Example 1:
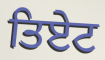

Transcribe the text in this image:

ਤਿਏਟ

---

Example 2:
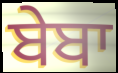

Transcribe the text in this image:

ਬੇਬਾ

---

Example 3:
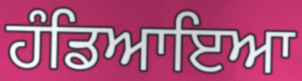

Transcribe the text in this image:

ਹੰਡਿਆਇਆ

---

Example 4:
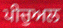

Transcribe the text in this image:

ਪੀਚੁਅਲ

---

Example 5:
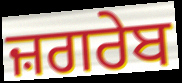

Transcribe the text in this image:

ਜ਼ਗਰੇਬ